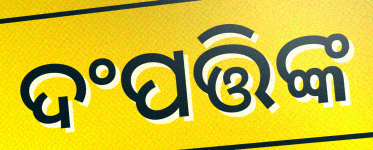
ଦଂପତ୍ତିଙ୍କ